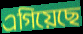
এগিয়েছে